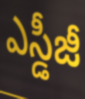
ఎస్డీజీ